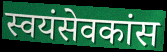
स्वयंसेवकांस